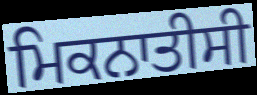
ਮਿਕਨਾਤੀਸੀ